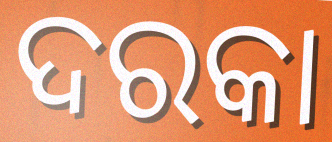
ଦରକା